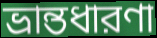
ভ্রান্তধারণা